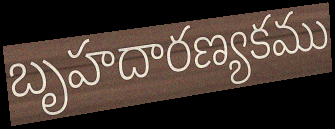
బృహదారణ్యకము